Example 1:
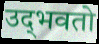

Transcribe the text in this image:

उद्‌भवतो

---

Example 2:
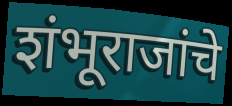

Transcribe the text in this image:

शंभूराजांचे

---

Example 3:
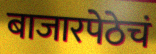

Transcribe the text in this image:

बाजारपेठेचं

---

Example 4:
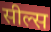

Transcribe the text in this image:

सील्स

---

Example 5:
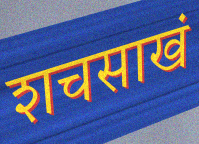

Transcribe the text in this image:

शचसाखं